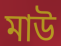
মাউ